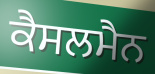
ਕੈਸਲਮੈਨ